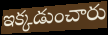
ఇక్కడుంచారు